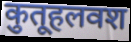
कुतूहलवश